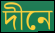
দীনে